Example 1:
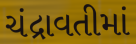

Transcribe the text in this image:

ચંદ્રાવતીમાં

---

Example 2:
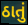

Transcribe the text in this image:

ઠાતું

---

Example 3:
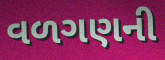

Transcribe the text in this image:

વળગણની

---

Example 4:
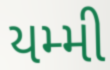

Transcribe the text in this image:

યમ્મી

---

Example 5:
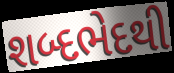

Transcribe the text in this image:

શબ્દભેદથી